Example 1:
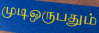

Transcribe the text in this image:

முடிஒருபதும்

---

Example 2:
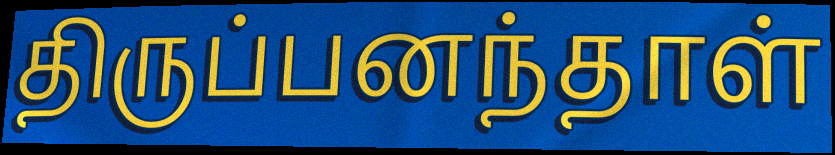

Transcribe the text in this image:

திருப்பனந்தாள்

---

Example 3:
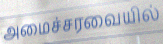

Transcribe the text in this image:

அமைச்சரவையில்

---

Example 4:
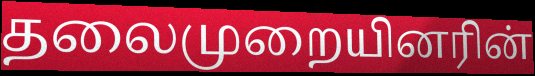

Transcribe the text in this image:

தலைமுறையினரின்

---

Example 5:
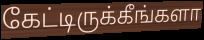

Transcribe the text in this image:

கேட்டிருக்கீங்களா